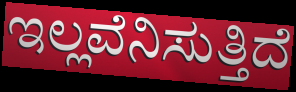
ಇಲ್ಲವೆನಿಸುತ್ತಿದೆ